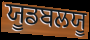
ਯੂਡਬਲਯੂ